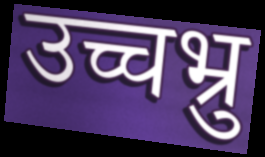
उच्चभ्रु